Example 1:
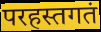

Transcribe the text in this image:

परहस्तगतं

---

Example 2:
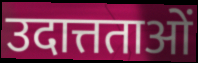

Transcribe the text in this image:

उदात्तताओं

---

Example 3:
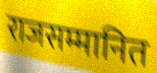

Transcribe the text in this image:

राजसम्मानित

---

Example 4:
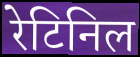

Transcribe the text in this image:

रेटिनिल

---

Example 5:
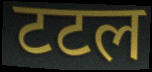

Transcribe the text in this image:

टटल